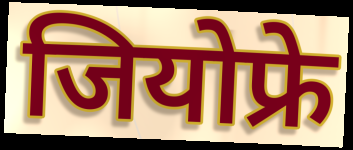
जियोफ्रे